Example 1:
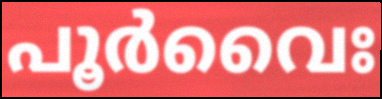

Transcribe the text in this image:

പൂർവൈഃ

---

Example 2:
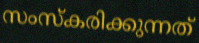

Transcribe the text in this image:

സംസ്കരിക്കുന്നത്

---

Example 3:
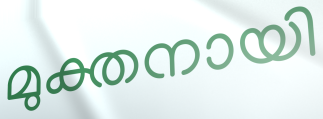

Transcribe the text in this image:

മുക്തനായി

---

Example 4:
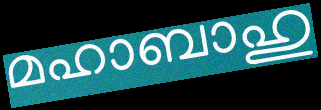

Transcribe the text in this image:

മഹാബാഹു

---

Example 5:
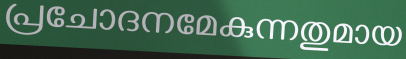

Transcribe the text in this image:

പ്രചോദനമേകുന്നതുമായ